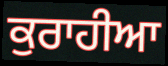
ਕੁਰਾਹੀਆ